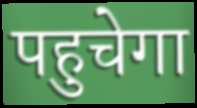
पहुचेगा